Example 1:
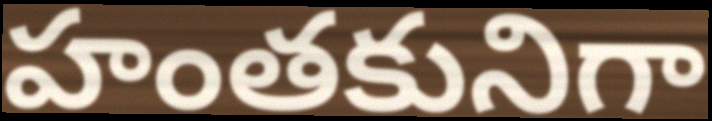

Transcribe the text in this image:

హంతకునిగా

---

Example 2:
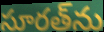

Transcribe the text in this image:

సూరత్‌ను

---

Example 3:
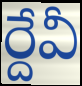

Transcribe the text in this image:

ర్దేవీ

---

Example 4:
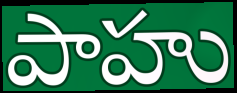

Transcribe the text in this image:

పాహు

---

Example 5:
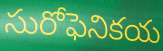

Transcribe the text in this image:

సురోఫెనికయ